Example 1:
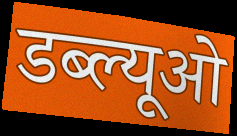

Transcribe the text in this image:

डब्ल्यूओ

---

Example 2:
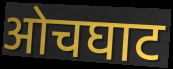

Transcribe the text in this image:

ओचघाट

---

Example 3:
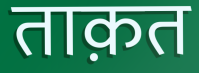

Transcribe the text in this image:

ताक़त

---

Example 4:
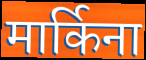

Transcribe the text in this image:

मार्किना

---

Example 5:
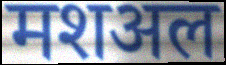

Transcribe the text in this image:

मशअल